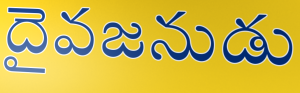
దైవజనుడు